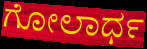
ಗೋಲಾರ್ಧ